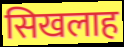
सिखलाह